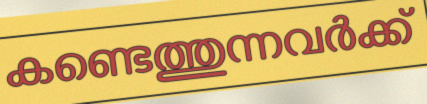
കണ്ടെത്തുന്നവർക്ക്